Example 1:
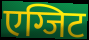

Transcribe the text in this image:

एग्जिट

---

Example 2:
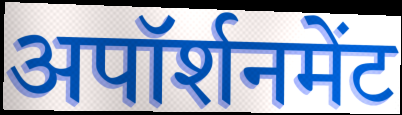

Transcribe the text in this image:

अपॉर्शनमेंट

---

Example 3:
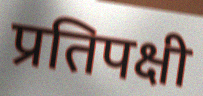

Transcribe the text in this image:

प्रतिपक्षी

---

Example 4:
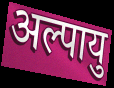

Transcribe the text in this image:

अल्पायु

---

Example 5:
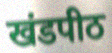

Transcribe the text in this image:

खंडपीठ